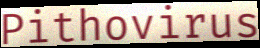
Pithovirus